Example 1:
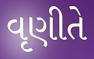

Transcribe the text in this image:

વૃણીતે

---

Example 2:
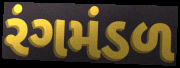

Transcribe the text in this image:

રંગમંડળ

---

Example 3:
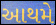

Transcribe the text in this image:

આથમે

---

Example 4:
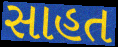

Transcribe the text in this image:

સાહત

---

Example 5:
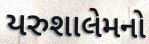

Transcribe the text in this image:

યરુશાલેમનો